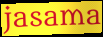
jasama